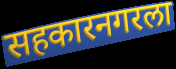
सहकारनगरला